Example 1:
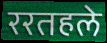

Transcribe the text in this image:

ररतहले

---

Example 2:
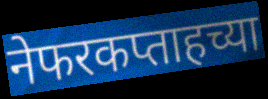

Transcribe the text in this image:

नेफरकप्ताहच्या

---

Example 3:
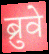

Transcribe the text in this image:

ब्रुवे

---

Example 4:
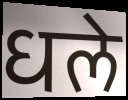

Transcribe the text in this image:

धले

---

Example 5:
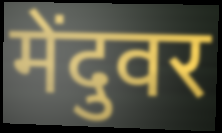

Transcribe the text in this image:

मेंदुवर